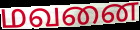
மவனை